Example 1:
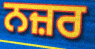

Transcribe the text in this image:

ਨਜ਼ਰ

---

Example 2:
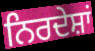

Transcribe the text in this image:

ਨਿਰਦੇਸ਼ਾਂ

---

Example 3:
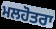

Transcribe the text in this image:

ਮਲਹੋਤਰਾ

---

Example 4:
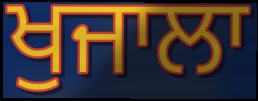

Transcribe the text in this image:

ਖੁਜਾਲਾ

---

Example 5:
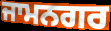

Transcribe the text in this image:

ਜਾਮਨਗਰ